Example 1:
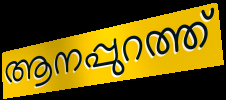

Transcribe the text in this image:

ആനപ്പുറത്ത്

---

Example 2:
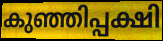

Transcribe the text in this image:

കുഞ്ഞിപ്പക്ഷി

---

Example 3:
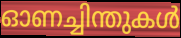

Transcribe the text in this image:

ഓണച്ചിന്തുകൾ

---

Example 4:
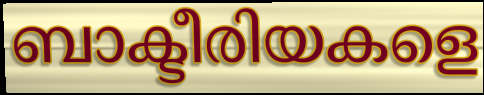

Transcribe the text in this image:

ബാക്ടീരിയകളെ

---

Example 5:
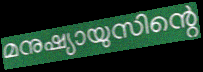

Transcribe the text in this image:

മനുഷ്യായുസിന്റെ